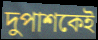
দুপাশকেই